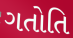
ગતોતિ